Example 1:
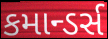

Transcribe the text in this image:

કમાન્ડર્સ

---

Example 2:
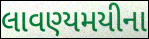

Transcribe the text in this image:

લાવણ્યમયીના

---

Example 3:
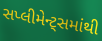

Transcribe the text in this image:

સપ્લીમેન્ટ્સમાંથી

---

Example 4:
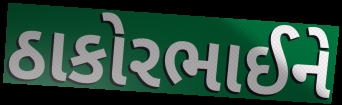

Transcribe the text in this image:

ઠાકોરભાઈને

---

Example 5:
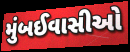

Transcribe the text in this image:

મુંબઈવાસીઓ